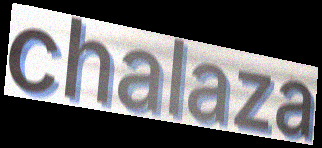
chalaza